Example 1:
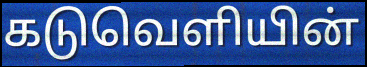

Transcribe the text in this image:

கடுவெளியின்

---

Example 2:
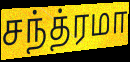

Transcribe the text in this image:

சந்த்ரமா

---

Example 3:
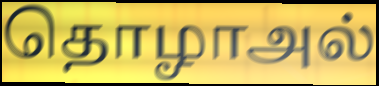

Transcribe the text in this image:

தொழாஅல்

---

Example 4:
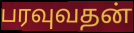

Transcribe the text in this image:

பரவுவதன்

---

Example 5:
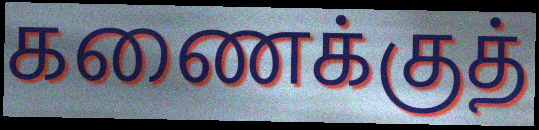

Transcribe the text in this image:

கணைக்குத்